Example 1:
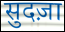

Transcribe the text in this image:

सुदज़ा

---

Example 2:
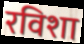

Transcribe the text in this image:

रविशा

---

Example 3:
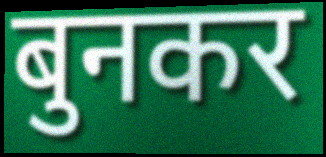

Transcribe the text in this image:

बुनकर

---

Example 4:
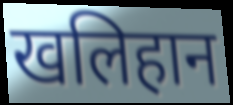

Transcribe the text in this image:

खलिहान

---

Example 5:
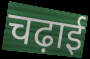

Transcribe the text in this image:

चढ़ाई